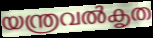
യന്ത്രവൽകൃത